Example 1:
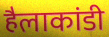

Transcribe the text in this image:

हैलाकांडी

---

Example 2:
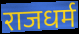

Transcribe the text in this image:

राजधर्म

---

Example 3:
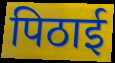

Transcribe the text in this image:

पिठाई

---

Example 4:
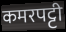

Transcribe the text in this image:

कमरपट्टी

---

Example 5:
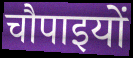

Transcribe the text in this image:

चौपाइयों